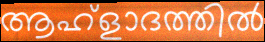
ആഹ്ളാദത്തിൽ